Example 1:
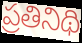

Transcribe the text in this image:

ప్రతినిథి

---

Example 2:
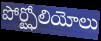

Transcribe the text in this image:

పోర్ట్ఫోలియోలు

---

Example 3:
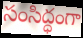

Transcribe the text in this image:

సంసిద్ధంగా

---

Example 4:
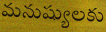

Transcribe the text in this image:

మనుష్యులకు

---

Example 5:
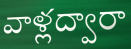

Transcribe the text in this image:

వాళ్లద్వారా